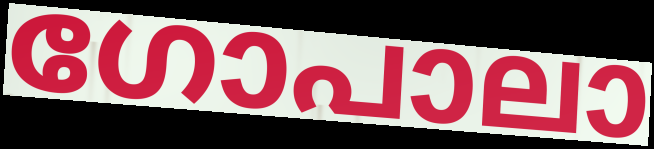
ഗോപാലാ